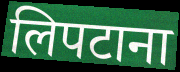
लिपटाना